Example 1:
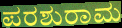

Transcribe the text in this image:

ಪರಶುರಾಮ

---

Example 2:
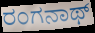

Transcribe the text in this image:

ರಂಗನಾಥ್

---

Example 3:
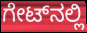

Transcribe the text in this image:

ಗೇಟ್‌ನಲ್ಲಿ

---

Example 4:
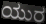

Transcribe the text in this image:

ಯುರ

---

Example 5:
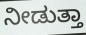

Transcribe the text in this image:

ನೀಡುತ್ತಾ